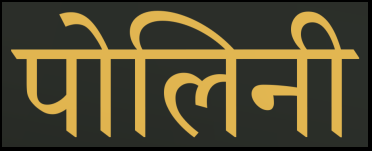
पोलिनी